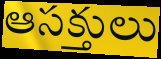
ఆసక్తులు